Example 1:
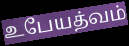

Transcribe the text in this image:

உபேயத்வம்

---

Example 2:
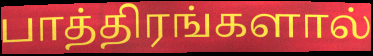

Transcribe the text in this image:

பாத்திரங்களால்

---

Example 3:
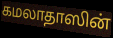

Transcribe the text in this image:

கமலாதாஸின்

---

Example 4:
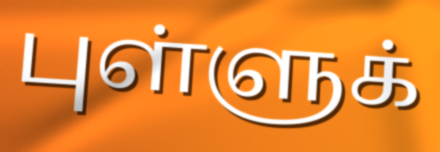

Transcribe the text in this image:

புள்ளுக்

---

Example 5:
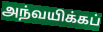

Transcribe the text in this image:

அந்வயிக்கப்